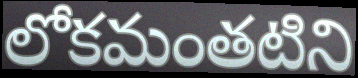
లోకమంతటిని